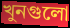
খুনগুলো